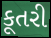
કૂતરી